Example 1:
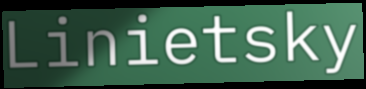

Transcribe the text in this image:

Linietsky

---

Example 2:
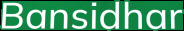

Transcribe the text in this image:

Bansidhar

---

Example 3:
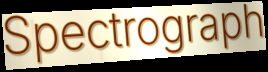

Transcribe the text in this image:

Spectrograph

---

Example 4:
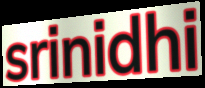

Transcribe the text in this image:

srinidhi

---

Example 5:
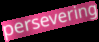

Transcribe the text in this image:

persevering